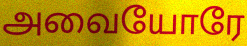
அவையோரே